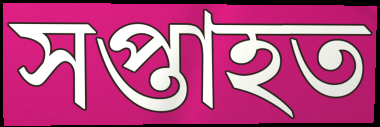
সপ্তাহত